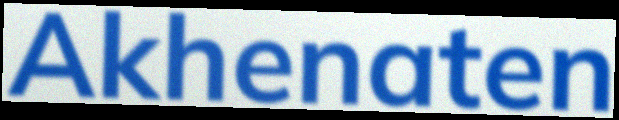
Akhenaten